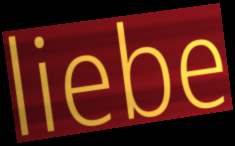
liebe